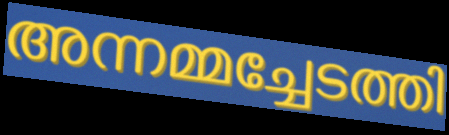
അന്നമ്മച്ചേടത്തി